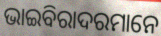
ଭାଇବିରାଦରମାନେ